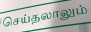
செய்தலாலும்